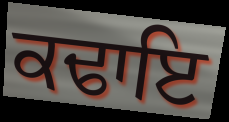
ਕਢਾਇ